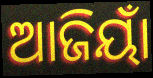
ଆଜିୟାଁ